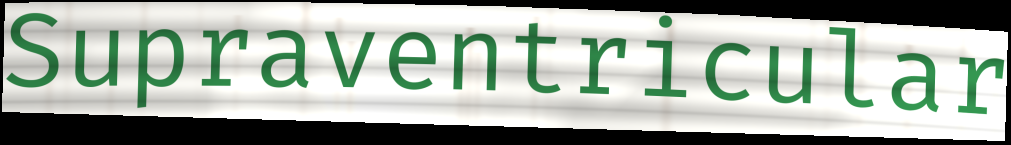
Supraventricular